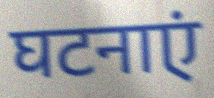
घटनाएं